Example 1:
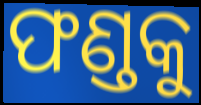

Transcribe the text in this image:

ଫଣ୍ଡକୁ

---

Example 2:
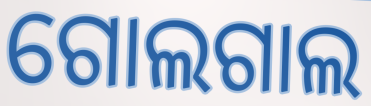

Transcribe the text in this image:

ଗୋଲଗାଲ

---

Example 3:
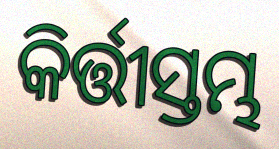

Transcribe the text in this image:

କିର୍ତ୍ତୀସ୍ତମ୍ଭ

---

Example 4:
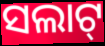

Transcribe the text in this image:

ସଲାଟ୍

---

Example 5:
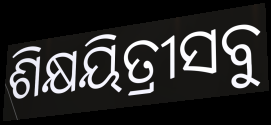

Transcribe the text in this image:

ଶିକ୍ଷୟିତ୍ରୀସବୁ